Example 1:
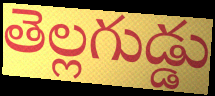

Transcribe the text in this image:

తెల్లగుడ్డు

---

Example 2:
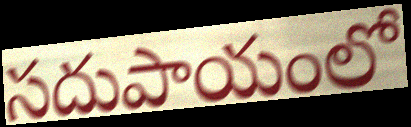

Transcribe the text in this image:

సదుపాయంలో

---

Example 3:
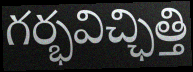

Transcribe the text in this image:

గర్భవిచ్ఛిత్తి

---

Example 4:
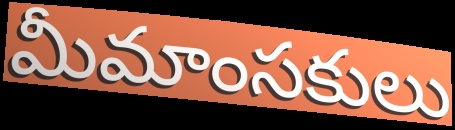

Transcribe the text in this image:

మీమాంసకులు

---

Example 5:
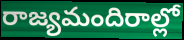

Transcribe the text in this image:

రాజ్యమందిరాల్లో